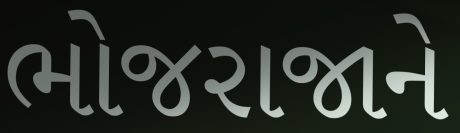
ભોજરાજાને